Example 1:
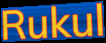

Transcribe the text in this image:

Rukul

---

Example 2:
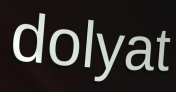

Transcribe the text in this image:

dolyat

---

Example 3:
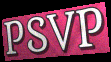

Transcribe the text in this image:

PSVP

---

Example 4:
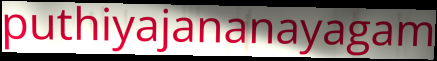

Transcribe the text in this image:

puthiyajananayagam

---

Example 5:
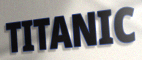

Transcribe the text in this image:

TITANIC